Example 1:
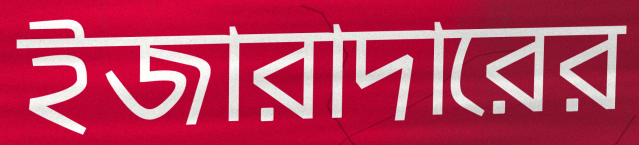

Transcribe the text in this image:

ইজারাদারের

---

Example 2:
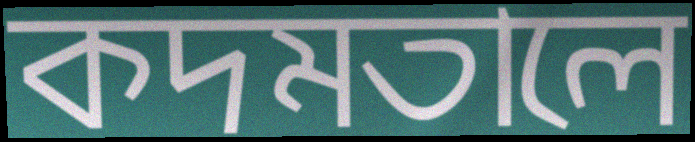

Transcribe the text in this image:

কদমতালে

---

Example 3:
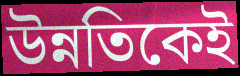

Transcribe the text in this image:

উন্নতিকেই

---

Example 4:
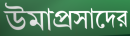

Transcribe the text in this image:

উমাপ্রসাদের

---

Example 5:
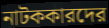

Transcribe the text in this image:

নাটককারদের